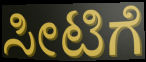
ಸೀಟಿಗೆ